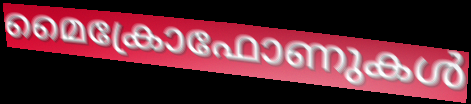
മൈക്രോഫോണുകൾ